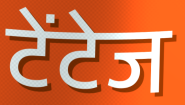
टेंटेज